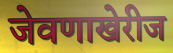
जेवणाखेरीज